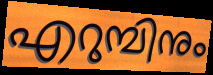
എറുമ്പിനും